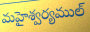
మహైశ్వర్యముల్